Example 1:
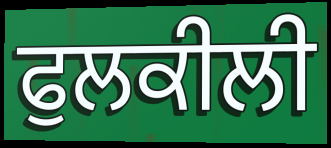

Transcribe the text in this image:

ਫੁਲਕੀਲੀ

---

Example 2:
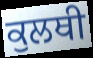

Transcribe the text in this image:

ਕੁਲਥੀ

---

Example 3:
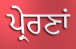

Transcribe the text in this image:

ਪ੍ਰੇਰਣਾਂ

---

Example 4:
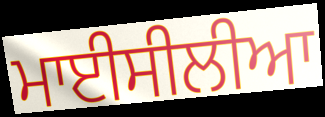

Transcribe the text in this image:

ਮਾਈਸੀਲੀਆ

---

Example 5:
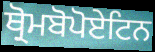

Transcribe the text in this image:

ਥ੍ਰੋਮਬੋਪੋਏਟਿਨ